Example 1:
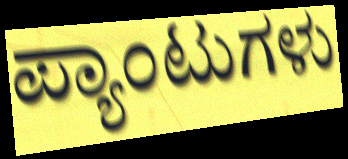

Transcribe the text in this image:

ಪ್ಯಾಂಟುಗಳು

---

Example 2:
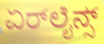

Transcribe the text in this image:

ಏರ್‌ಲೈನ್ಸ್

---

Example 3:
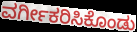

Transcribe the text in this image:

ವರ್ಗೀಕರಿಸಿಕೊಂಡು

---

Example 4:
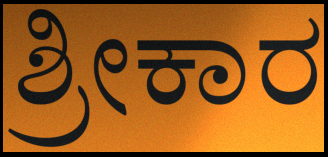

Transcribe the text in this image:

ಶ್ರೀಕಾರ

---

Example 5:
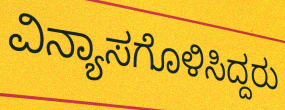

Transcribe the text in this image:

ವಿನ್ಯಾಸಗೊಳಿಸಿದ್ದರು